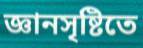
জ্ঞানসৃষ্টিতে